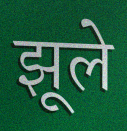
झूले